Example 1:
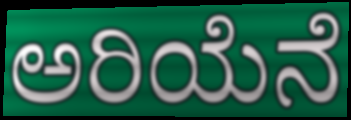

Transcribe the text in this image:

ಅರಿಯೆನೆ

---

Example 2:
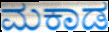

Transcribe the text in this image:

ಮಕಾಡ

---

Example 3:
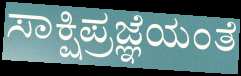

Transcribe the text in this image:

ಸಾಕ್ಷಿಪ್ರಜ್ಞೆಯಂತೆ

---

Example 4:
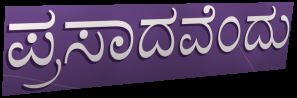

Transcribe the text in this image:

ಪ್ರಸಾದವೆಂದು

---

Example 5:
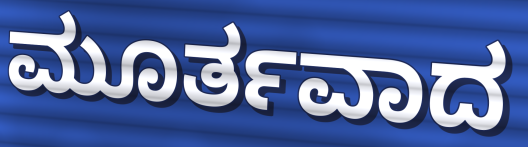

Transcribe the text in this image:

ಮೂರ್ತವಾದ